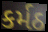
કર્મઠ